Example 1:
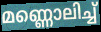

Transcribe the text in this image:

മണ്ണൊലിച്ച്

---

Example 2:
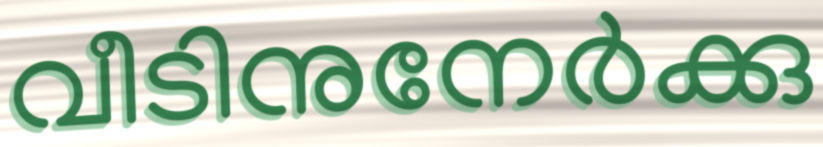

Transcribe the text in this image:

വീടിനുനേർക്കു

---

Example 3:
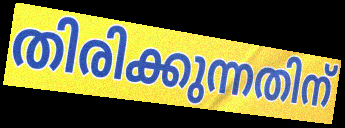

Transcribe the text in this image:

തിരിക്കുന്നതിന്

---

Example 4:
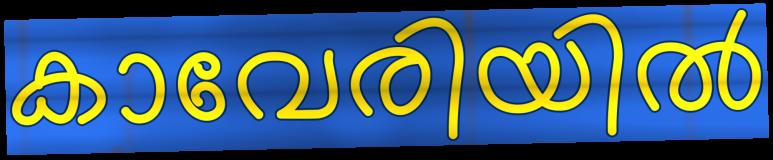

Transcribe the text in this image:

കാവേരിയിൽ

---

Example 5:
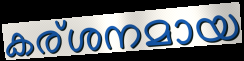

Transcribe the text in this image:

കര്ശനമായ